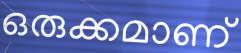
ഒരുക്കമാണ്